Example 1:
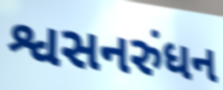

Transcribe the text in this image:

શ્વસનરુંધન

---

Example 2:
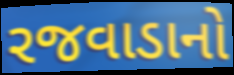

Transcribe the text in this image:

રજવાડાનો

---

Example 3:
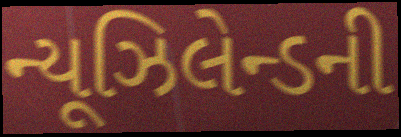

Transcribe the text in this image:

ન્યૂઝિલેન્ડની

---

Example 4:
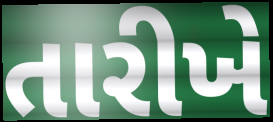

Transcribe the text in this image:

તારીખે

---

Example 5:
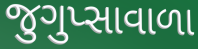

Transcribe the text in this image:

જુગુપ્સાવાળા